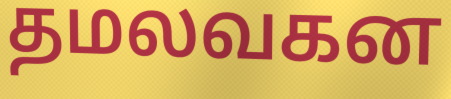
தமலவகன